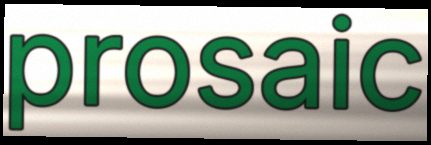
prosaic